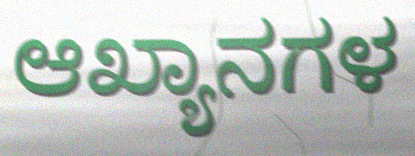
ಆಖ್ಯಾನಗಳ